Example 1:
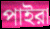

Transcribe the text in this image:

পাইরা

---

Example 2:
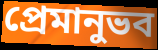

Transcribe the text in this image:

প্রেমানুভব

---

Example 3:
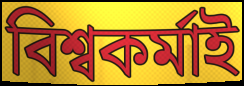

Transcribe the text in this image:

বিশ্বকর্মাই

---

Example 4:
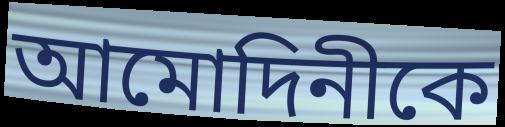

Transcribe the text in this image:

আমোদিনীকে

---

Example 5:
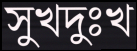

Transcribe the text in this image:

সুখদুঃখ